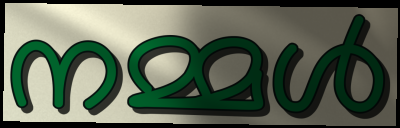
നമ്മൾ